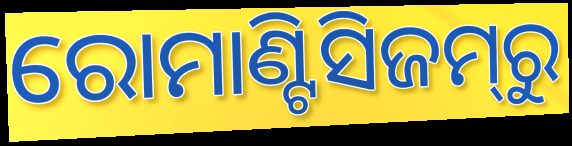
ରୋମାଣ୍ଟିସିଜମ୍‌ରୁ